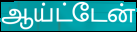
ஆய்ட்டேன்